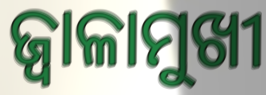
ଜ୍ୱାଳାମୁଖୀ